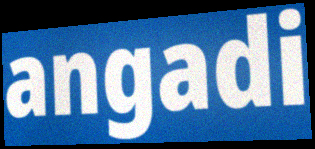
angadi